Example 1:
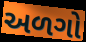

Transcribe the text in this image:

અળગો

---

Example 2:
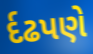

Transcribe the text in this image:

ર્દઢપણે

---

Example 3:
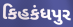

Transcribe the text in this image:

કિહકંધપુર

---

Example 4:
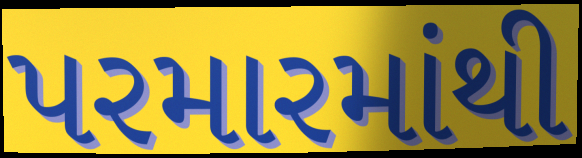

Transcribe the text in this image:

પરમારમાંથી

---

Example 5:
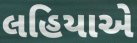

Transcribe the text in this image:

લહિયાએ